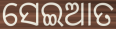
ସେଇଆତ